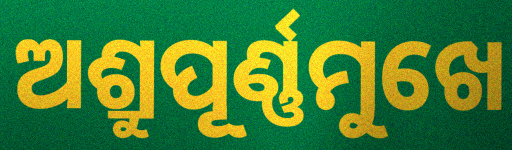
ଅଶ୍ରୁପୂର୍ଣ୍ଣମୁଖେ